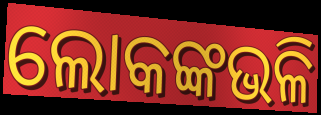
ଲୋକଙ୍କଭଳି